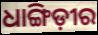
ଧାଙ୍ଗିଡ଼ୀର